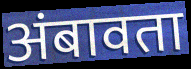
अंबावता